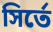
সির্তে